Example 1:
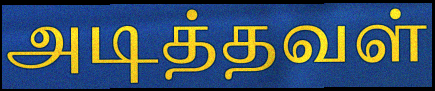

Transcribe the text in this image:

அடித்தவள்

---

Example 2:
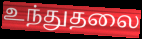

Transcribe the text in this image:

உந்துதலை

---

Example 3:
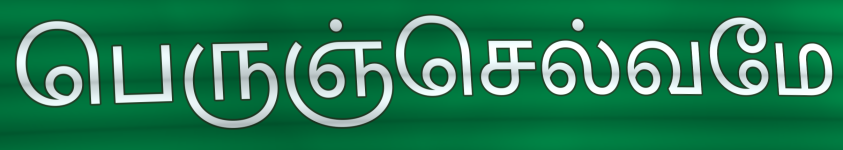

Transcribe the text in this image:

பெருஞ்செல்வமே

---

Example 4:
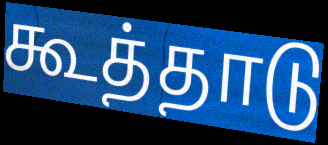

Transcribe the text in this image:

கூத்தாடு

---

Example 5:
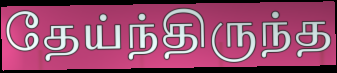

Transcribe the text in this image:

தேய்ந்திருந்த